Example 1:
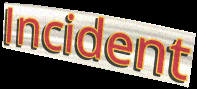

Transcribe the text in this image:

Incident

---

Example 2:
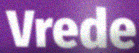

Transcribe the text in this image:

Vrede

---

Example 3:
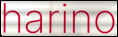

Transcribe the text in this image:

harino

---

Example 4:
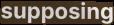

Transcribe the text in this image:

supposing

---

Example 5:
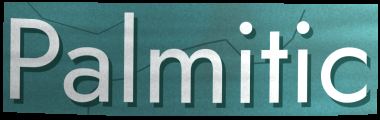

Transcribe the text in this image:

Palmitic